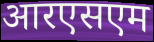
आरएसएम